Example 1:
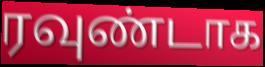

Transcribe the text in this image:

ரவுண்டாக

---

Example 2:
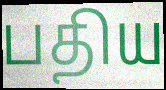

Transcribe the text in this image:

பதிய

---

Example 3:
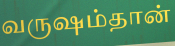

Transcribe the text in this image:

வருஷம்தான்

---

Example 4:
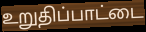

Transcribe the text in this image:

உறுதிப்பாட்டை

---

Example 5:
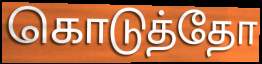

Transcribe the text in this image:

கொடுத்தோ